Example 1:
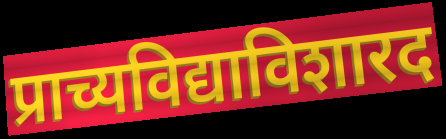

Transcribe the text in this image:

प्राच्यविद्याविशारद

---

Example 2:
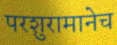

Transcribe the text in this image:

परशुरामानेच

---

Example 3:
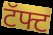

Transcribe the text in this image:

टॅफ्ट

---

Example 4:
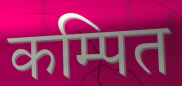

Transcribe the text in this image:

कम्पित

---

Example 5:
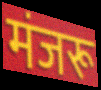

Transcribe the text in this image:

मंजरू